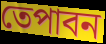
তেপাবন